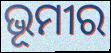
ଭୂମୀର